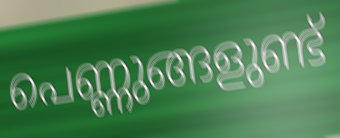
പെണ്ണുങ്ങളുണ്ട്